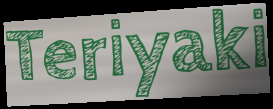
Teriyaki